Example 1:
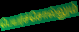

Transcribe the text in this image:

பெயர்ச்சொல்லும்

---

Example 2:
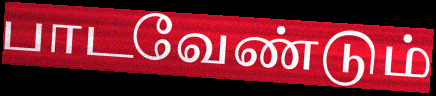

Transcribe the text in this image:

பாடவேண்டும்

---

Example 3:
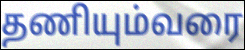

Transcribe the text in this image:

தணியும்வரை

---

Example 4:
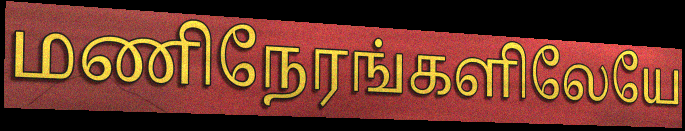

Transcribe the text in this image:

மணிநேரங்களிலேயே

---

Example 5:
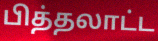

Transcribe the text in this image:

பித்தலாட்ட